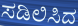
ಸಡಿಲಿಸಿದ